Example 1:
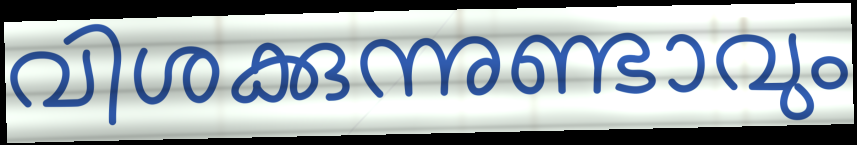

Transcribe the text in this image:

വിശക്കുന്നുണ്ടാവും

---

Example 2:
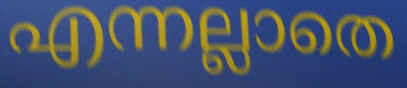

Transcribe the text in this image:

എന്നല്ലാതെ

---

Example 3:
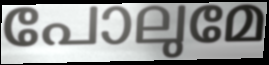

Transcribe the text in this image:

പോലുമേ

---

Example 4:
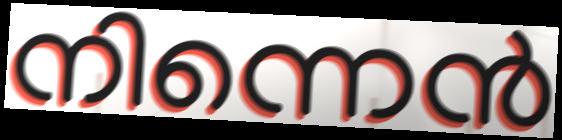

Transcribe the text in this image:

നിന്നെൻ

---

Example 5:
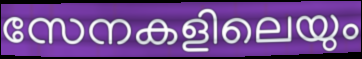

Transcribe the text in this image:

സേനകളിലെയും